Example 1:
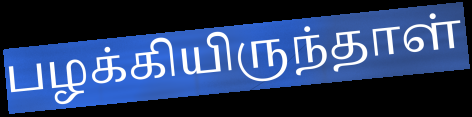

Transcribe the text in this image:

பழக்கியிருந்தாள்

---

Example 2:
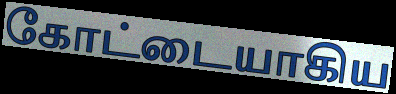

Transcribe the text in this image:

கோட்டையாகிய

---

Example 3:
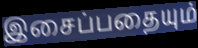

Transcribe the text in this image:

இசைப்பதையும்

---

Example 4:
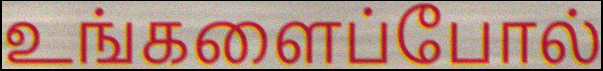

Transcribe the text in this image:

உங்களைப்போல்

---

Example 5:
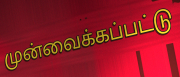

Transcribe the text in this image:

முன்வைக்கப்பட்டு